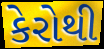
કેરોથી